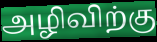
அழிவிற்கு